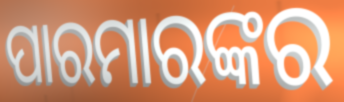
ପାରମାରଙ୍କର